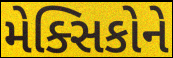
મેક્સિકોને